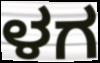
ಳಗ